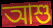
আশু